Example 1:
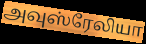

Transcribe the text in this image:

அவுஸ்ரேலியா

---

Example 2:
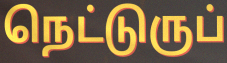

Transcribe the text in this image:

நெட்டுருப்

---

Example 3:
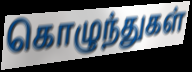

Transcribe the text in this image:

கொழுந்துகள்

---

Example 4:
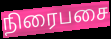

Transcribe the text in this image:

நிரைபசை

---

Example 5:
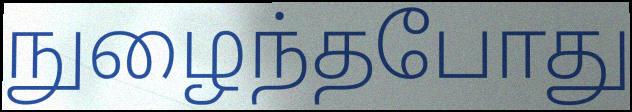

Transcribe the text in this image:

நுழைந்தபோது